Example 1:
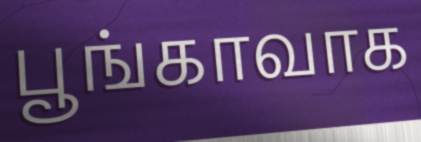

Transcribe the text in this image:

பூங்காவாக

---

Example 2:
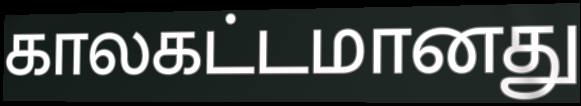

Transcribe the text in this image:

காலகட்டமானது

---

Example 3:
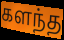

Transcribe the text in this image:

களந்த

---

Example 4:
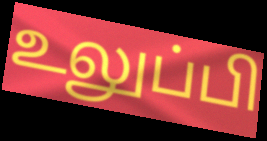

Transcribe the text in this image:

உலுப்பி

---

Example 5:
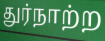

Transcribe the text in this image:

துர்நாற்ற